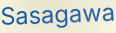
Sasagawa